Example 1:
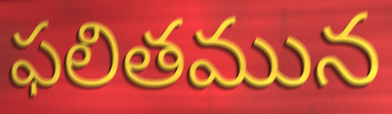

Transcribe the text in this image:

ఫలితమున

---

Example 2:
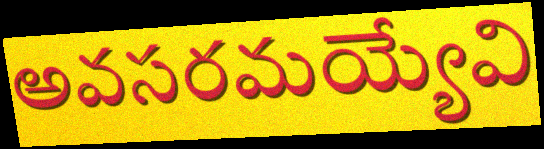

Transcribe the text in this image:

అవసరమయ్యేవి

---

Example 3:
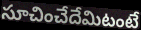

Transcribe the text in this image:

సూచించేదేమిటంటే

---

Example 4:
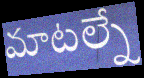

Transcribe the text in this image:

మాటల్నే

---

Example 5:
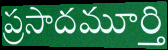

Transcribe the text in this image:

ప్రసాదమూర్తి